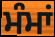
ਮੰਮਾਂ